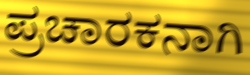
ಪ್ರಚಾರಕನಾಗಿ